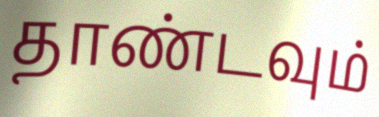
தாண்டவும்